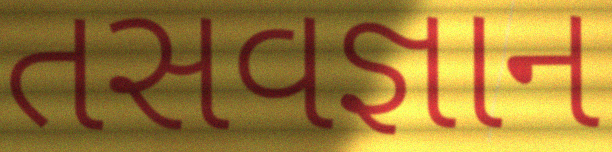
તસવજ્ઞાન